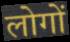
लोगों